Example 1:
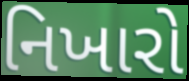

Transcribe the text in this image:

નિખારો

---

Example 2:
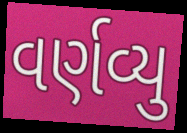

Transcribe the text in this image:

વર્ણવ્યુ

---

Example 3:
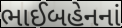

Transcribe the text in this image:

ભાઈબહેનનાં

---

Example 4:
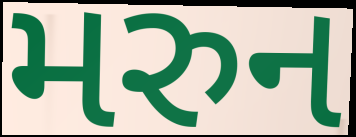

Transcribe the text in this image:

મરુન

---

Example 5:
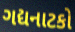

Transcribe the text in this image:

ગદ્યનાટકો